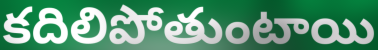
కదిలిపోతుంటాయి